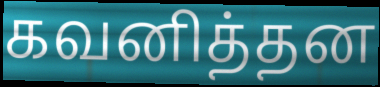
கவனித்தன